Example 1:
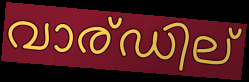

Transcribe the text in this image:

വാര്ഡില്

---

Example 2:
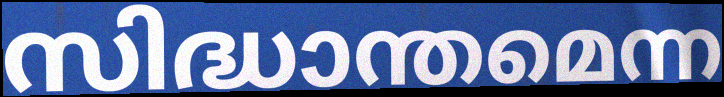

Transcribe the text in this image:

സിദ്ധാന്തമെന്ന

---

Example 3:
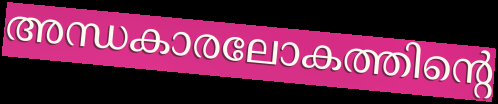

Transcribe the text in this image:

അന്ധകാരലോകത്തിന്റെ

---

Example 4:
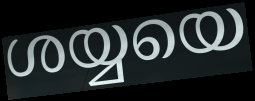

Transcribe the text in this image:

ശയ്യയെ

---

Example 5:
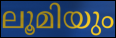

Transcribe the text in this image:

ലൂമിയും